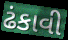
ઢંકાવી